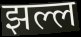
झल्ल